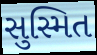
સુસ્મિત